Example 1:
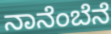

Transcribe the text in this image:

ನಾನೆಂಬೆನೆ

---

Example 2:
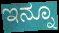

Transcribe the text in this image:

ಇನ್ನೂ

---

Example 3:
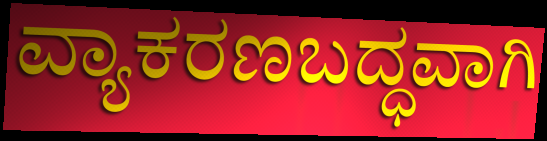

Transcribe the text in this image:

ವ್ಯಾಕರಣಬದ್ಧವಾಗಿ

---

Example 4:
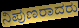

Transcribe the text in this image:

ನಿಪುಣರಾದರು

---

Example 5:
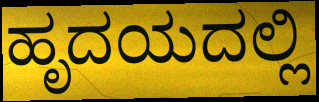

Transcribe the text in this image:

ಹೃದಯದಲ್ಲಿ